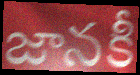
జానకీ